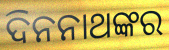
ଦିନନାଥଙ୍କର